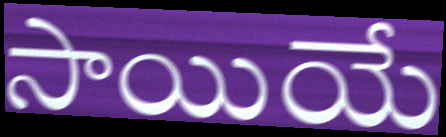
సాయియే